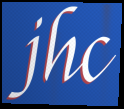
jhc